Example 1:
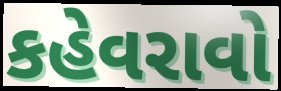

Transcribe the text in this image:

કહેવરાવો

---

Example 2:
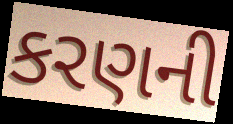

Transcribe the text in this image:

કરણની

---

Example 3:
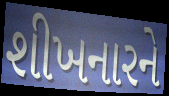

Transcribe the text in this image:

શીખનારને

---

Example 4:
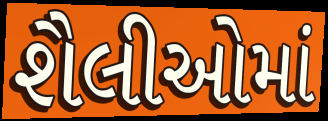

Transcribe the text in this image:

શૈલીઓમાં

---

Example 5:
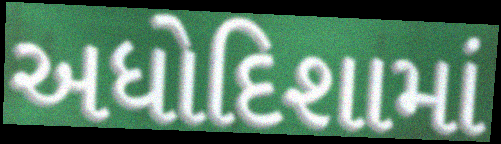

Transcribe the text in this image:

અધોદિશામાં